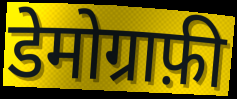
डेमोग्राफ़ी